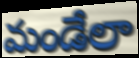
మండేలా